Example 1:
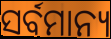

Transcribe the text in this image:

ସର୍ବମାନ୍ୟ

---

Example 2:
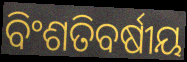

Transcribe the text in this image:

ବିଂଶତିବର୍ଷୀୟ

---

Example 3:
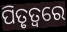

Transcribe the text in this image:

ପିତୃତ୍ୱରେ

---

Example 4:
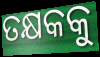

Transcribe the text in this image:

ତକ୍ଷକକୁ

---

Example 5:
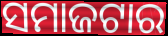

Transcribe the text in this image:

ସମାଜଟାର